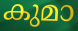
കുമാ